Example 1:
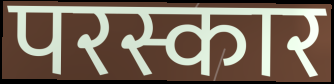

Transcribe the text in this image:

परस्कार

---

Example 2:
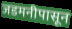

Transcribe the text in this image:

जडमनीपासून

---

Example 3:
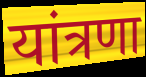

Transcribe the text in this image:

यांत्रणा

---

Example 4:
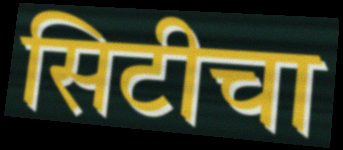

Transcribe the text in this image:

सिटीचा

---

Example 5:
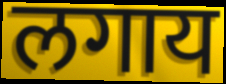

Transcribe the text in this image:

लगाय